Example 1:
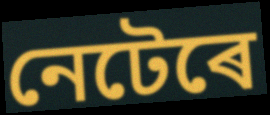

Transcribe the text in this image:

নেটেৰে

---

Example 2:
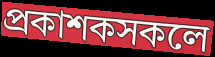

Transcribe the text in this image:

প্ৰকাশকসকলে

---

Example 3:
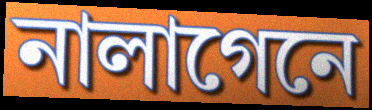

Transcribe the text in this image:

নালাগেনে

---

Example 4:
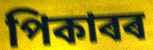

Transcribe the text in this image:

পিকাৰৰ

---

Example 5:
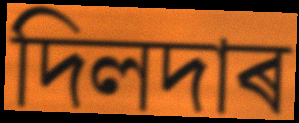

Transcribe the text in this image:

দিলদাৰ